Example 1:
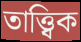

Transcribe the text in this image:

তাত্ত্বিক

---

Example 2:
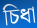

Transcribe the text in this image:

চিধা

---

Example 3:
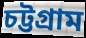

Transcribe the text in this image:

চট্টগ্ৰাম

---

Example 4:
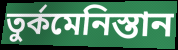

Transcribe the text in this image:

তুৰ্কমেনিস্তান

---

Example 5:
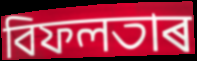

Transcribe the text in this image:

বিফলতাৰ